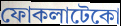
ফোকলাটেকো